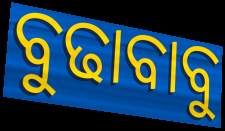
ବୁଢାବାବୁ